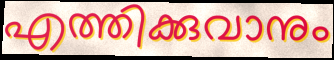
എത്തിക്കുവാനും